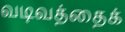
வடிவத்தைக்